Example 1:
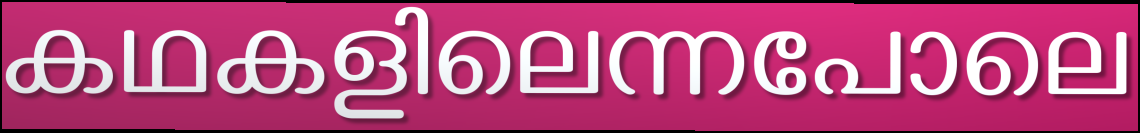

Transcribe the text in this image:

കഥകളിലെന്നപോലെ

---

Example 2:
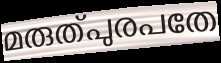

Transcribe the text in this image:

മരുത്പുരപതേ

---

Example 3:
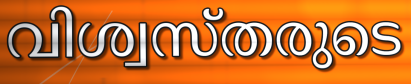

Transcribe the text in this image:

വിശ്വസ്തരുടെ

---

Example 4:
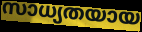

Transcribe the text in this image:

സാധ്യതയായ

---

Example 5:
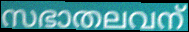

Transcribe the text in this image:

സഭാതലവന്